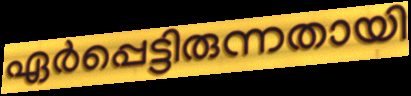
ഏർപ്പെട്ടിരുന്നതായി